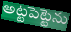
అట్టపెట్టెను